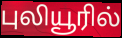
புலியூரில்